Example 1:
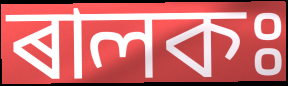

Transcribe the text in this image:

ৰালকঃ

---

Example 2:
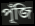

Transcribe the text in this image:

পূঁজি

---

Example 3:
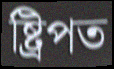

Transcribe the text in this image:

ষ্ট্ৰিপত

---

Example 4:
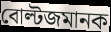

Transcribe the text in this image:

বোল্টজমানক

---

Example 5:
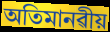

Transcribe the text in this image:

অতিমানৱীয়